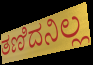
ತಣಿದನಿಲ್ಲ